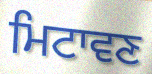
ਮਿਟਾਵਣ